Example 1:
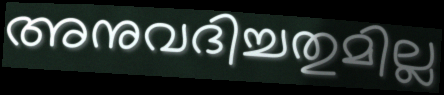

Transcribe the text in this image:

അനുവദിച്ചതുമില്ല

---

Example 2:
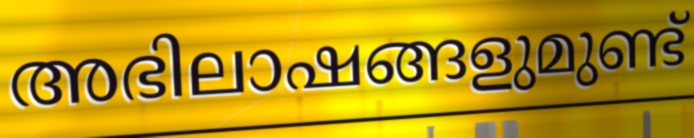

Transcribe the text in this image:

അഭിലാഷങ്ങളുമുണ്ട്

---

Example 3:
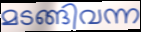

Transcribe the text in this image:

മടങ്ങിവന്ന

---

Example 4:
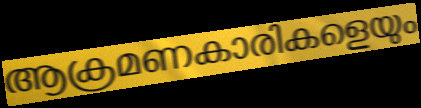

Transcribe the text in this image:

ആക്രമണകാരികളെയും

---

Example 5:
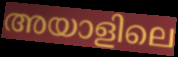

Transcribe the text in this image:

അയാളിലെ